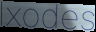
Ixodes